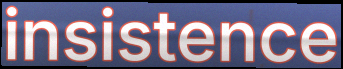
insistence